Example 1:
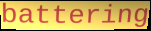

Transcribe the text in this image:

battering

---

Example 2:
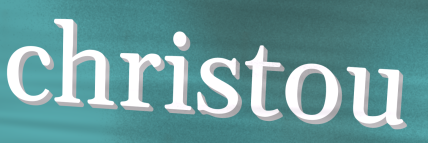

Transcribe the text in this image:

christou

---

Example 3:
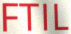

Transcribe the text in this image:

FTIL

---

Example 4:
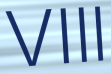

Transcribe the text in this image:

VIll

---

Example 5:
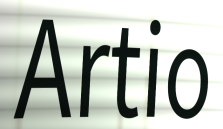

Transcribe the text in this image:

Artio